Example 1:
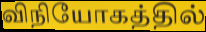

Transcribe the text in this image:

விநியோகத்தில்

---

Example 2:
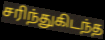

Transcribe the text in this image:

சரிந்துகிடந்த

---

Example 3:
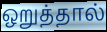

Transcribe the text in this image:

ஒறுத்தால்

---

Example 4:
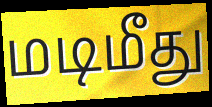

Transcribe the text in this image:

மடிமீது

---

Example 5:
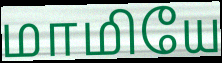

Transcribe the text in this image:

மாமியே